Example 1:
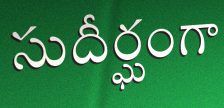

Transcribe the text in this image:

సుదీర్ఘంగా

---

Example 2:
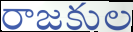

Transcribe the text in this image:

రాజకుల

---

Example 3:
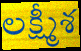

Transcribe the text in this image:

లక్ష్మీశ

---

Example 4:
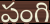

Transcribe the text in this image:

పంగి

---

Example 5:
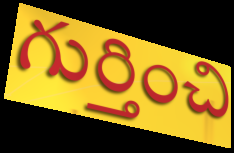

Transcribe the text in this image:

గుర్తించి